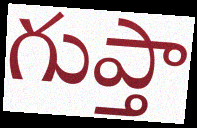
గుప్తా